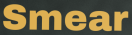
Smear